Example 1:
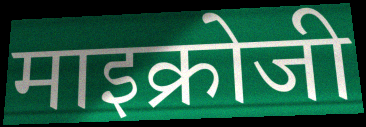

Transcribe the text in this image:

माइक्रोजी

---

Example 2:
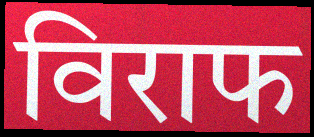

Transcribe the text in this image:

विराफ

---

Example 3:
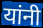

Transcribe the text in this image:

यांनी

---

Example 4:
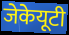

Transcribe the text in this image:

जेकेयूटी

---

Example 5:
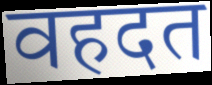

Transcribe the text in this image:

वहदत